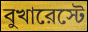
বুখারেস্টে